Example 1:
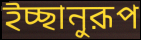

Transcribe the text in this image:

ইচ্ছানুরূপ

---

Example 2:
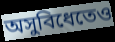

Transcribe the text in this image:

অসুবিধেতেও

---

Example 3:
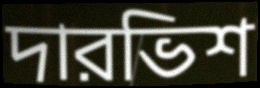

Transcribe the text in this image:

দারভিশ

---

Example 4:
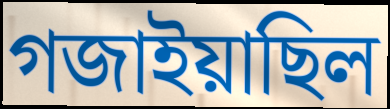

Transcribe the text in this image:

গজাইয়াছিল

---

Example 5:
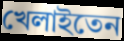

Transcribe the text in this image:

খেলাইতেন